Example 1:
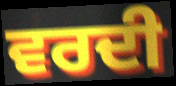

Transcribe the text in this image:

ਵਰਦੀ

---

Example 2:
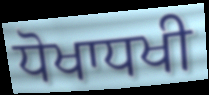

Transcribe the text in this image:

ਧੋਖਾਧਖੀ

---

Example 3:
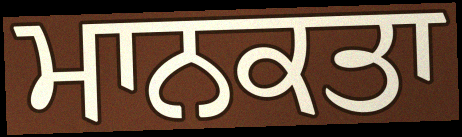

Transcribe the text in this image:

ਮਾਨਕਤਾ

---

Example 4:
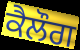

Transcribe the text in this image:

ਕੈਲੌਗ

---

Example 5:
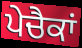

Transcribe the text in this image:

ਪੇਚੈਕਾਂ